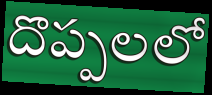
దొప్పలలో